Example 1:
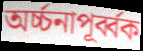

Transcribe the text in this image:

অর্চ্চনাপূর্ব্বক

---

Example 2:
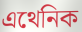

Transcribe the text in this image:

এথেনিক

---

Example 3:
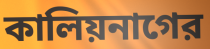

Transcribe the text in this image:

কালিয়নাগের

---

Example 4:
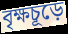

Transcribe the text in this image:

বৃক্ষচূড়ে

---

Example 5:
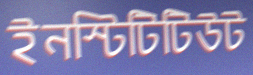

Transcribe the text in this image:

ইনস্টিটিটিউট